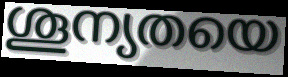
ശൂന്യതയെ